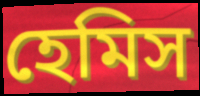
হেমিস